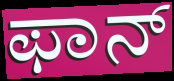
ಫಾನ್